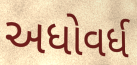
અધોવર્ધ